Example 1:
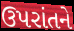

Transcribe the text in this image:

ઉપરાંતને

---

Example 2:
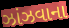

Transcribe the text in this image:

ઝાંઝવાના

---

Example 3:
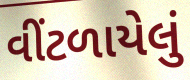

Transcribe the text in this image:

વીંટળાયેલું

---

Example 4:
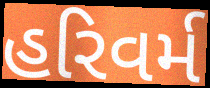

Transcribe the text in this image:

હરિવર્મ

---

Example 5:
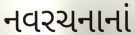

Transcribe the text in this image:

નવરચનાનાં